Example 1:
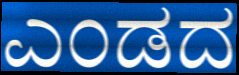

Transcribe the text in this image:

ಎಂಡದ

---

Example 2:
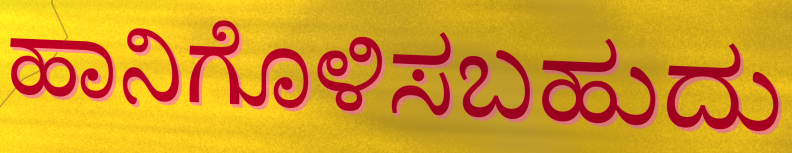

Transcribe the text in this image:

ಹಾನಿಗೊಳಿಸಬಹುದು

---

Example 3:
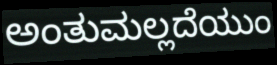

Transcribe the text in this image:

ಅಂತುಮಲ್ಲದೆಯುಂ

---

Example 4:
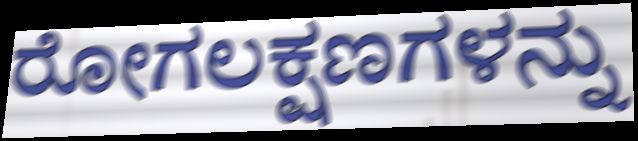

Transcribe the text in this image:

ರೋಗಲಕ್ಷಣಗಳನ್ನು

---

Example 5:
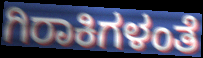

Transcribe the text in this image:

ಗಿರಾಕಿಗಳಂತೆ